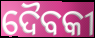
ଦୈବକୀ